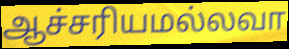
ஆச்சரியமல்லவா